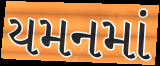
યમનમાં